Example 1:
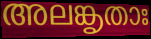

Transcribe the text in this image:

അലങ്കൃതാഃ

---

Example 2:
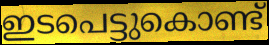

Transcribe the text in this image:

ഇടപെട്ടുകൊണ്ട്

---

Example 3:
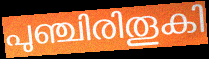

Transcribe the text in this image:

പുഞ്ചിരിതൂകി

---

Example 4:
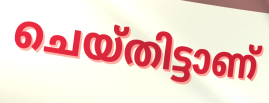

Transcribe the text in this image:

ചെയ്തിട്ടാണ്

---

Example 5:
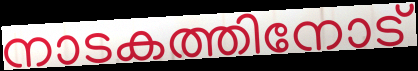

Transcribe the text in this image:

നാടകത്തിനോട്